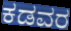
ಕಡವರ